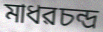
মাধৱচন্দ্ৰ